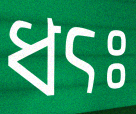
ধৎঃ